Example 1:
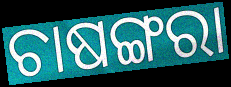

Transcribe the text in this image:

ଚାଷଙ୍ଗରା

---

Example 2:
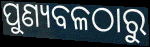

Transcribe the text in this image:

ପୁଣ୍ୟବଳଠାରୁ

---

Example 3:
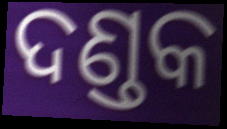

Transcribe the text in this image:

ଦଣ୍ଡକ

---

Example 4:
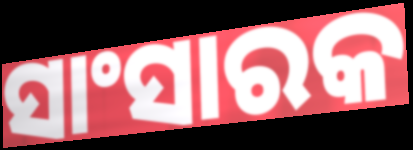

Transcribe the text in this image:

ସାଂସାରକ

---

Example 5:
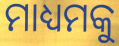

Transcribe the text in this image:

ମାଧ୍ୟମକୁ